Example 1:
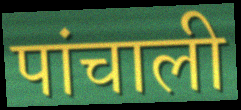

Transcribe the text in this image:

पांचाली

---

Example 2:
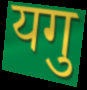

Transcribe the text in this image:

यगु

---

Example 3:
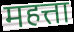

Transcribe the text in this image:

महत्ता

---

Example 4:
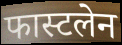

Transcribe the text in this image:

फास्टलेन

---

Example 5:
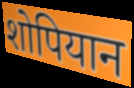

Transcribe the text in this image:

शोपियान